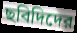
ছবিদিদের